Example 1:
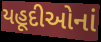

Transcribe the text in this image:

યહૂદીઓનાં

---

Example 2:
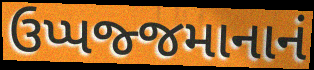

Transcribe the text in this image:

ઉપ્પજ્જમાનાનં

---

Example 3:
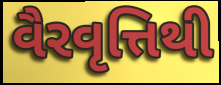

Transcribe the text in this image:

વૈરવૃત્તિથી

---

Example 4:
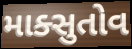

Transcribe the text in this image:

માક્સુતોવ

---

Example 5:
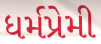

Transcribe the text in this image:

ધર્મપ્રેમી